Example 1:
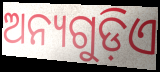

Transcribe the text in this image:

ଅନ୍ୟଗୁଡ଼ିଏ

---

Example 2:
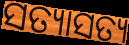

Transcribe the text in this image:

ସତ୍ୟାସତ୍ୟ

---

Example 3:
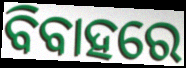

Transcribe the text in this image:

ବିବାହରେ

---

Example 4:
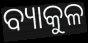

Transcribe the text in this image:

ବ୍ୟାକୁଳ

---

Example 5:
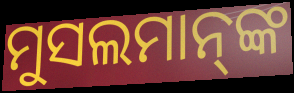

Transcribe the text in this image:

ମୁସଲମାନ୍‍ଙ୍କ